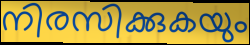
നിരസിക്കുകയും